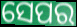
ସେପର